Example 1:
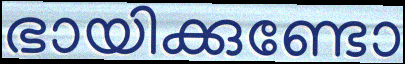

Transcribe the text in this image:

ഭായിക്കുണ്ടോ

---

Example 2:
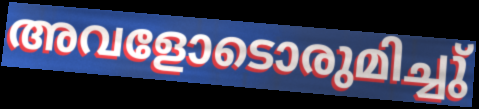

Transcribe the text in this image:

അവളോടൊരുമിച്ചു്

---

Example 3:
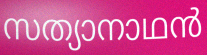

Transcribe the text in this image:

സത്യാനാഥൻ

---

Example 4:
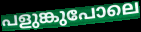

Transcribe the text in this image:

പളുങ്കുപോലെ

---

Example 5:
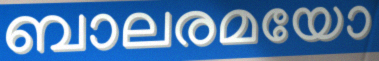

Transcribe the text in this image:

ബാലരമയോ